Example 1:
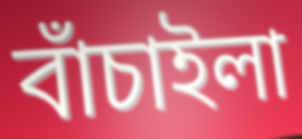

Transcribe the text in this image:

বাঁচাইলা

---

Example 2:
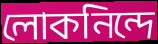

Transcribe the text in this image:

লোকনিন্দে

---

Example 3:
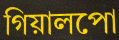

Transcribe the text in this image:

গিয়ালপো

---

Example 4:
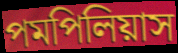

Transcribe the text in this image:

পমপিলিয়াস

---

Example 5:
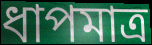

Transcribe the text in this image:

ধাপমাত্র